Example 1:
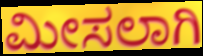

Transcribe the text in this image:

ಮೀಸಲಾಗಿ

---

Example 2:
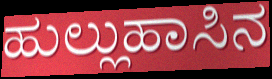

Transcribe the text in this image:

ಹುಲ್ಲುಹಾಸಿನ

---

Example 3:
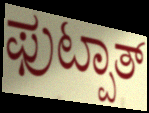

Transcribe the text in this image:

ಫುಟ್ಪಾತ್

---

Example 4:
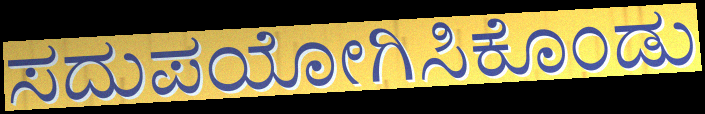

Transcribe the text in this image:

ಸದುಪಯೋಗಿಸಿಕೊಂಡು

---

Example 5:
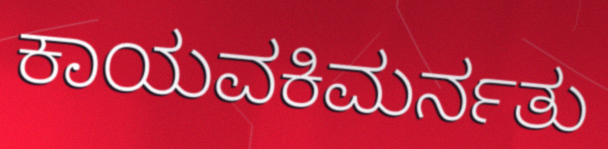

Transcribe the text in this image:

ಕಾಯವಕಿಮರ್ನತು